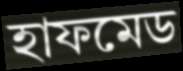
হাফমেড